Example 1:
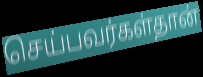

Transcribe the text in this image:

செய்பவர்கள்தான்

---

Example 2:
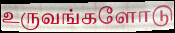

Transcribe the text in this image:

உருவங்களோடு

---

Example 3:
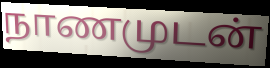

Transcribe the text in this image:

நாணமுடன்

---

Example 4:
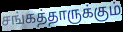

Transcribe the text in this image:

சங்கத்தாருக்கும்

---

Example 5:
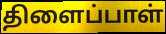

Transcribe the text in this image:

திளைப்பாள்